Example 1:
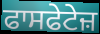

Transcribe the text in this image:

ਫਾਸਫੇਟੇਜ਼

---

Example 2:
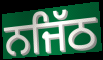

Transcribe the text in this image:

ਨਜਿੱਠ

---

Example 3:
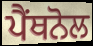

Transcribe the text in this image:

ਪੈਂਥਨੋਲ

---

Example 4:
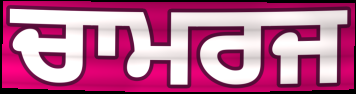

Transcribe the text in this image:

ਚਾਮਰਜ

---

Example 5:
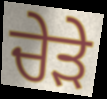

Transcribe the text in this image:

ਚੇੜੇ